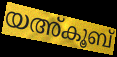
യഅ്കൂബ്